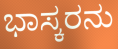
ಭಾಸ್ಕರನು